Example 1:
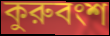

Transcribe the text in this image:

কুরুবংশ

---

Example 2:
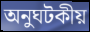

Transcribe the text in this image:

অনুঘটকীয়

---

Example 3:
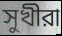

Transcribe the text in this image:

সুখীরা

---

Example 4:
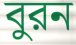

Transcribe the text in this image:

বুরন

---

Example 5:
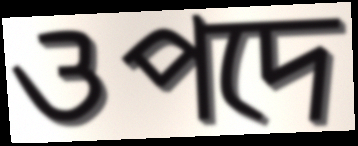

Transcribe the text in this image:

ওপদে